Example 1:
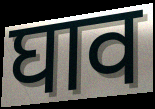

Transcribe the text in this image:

घाव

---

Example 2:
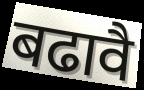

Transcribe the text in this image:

बढावै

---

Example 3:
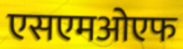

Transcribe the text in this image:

एसएमओएफ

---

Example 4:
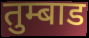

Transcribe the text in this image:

तुम्बाड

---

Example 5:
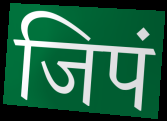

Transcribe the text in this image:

जिपं